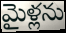
మైళ్లను